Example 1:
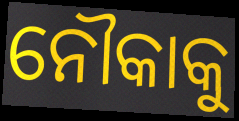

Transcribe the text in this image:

ନୌକାକୁ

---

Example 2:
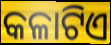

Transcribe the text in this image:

କଳାଟିଏ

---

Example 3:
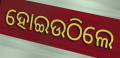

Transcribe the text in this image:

ହୋଇଉଠିଲେ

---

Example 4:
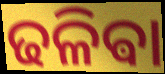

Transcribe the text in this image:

ଢଳିଵା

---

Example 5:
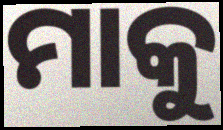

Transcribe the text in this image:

ମାକୁ